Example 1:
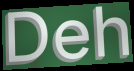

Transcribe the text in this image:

Deh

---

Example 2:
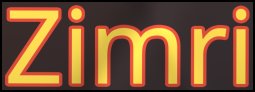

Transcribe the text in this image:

Zimri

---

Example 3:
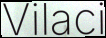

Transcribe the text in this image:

Vilaci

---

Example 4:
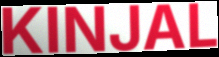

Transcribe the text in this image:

KINJAL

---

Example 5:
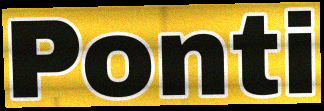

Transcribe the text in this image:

Ponti